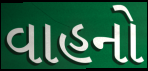
વાહનો